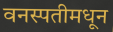
वनस्पतीमधून